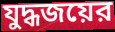
যুদ্ধজয়ের